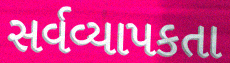
સર્વવ્યાપકતા